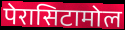
पेरासिटामोल